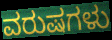
ವರುಷಗಳು